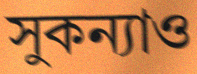
সুকন্যাও